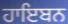
ਹਾਇਬਨ